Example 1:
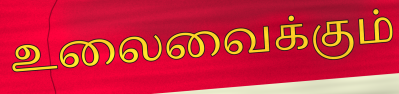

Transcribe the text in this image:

உலைவைக்கும்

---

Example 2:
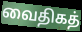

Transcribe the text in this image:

வைதிகத்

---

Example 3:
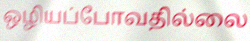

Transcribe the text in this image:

ஒழியப்போவதில்லை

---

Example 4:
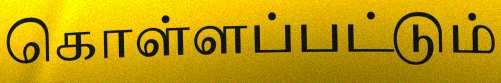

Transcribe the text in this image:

கொள்ளப்பட்டும்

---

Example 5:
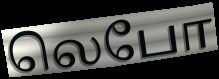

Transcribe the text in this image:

லெபோ